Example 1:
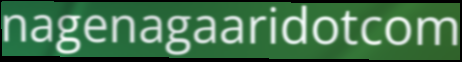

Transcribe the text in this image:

nagenagaaridotcom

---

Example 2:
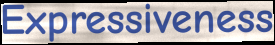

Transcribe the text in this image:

Expressiveness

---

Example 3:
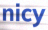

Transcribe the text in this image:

nicy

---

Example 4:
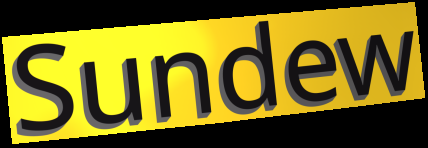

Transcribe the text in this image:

Sundew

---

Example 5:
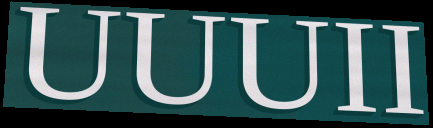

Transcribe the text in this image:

UUUII